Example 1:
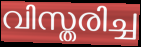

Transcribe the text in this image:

വിസ്തരിച്ച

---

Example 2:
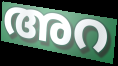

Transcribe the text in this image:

അറ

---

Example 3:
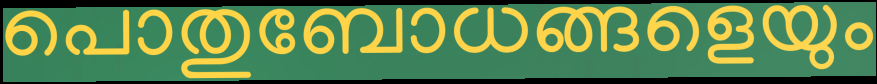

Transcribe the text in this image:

പൊതുബോധങ്ങളെയും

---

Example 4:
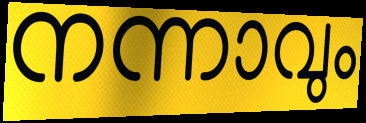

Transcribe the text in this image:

നന്നാവും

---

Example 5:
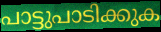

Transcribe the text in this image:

പാട്ടുപാടിക്കുക